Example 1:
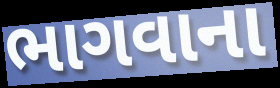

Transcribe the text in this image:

ભાગવાના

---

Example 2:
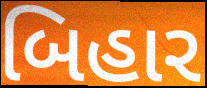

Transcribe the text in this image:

બિહાર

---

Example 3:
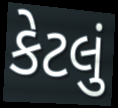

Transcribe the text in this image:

કેટલું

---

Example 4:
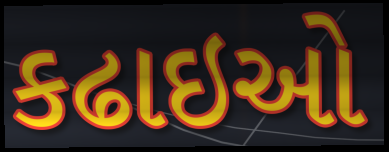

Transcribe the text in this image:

કઢાઇઓ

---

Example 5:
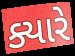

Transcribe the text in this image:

ક્યારે